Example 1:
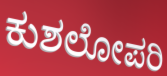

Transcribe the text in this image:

ಕುಶಲೋಪರಿ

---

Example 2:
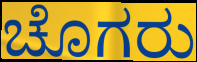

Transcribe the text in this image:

ಚೊಗರು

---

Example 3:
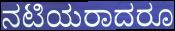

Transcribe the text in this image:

ನಟಿಯರಾದರೂ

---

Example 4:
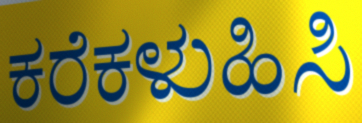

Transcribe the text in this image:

ಕರೆಕಳುಹಿಸಿ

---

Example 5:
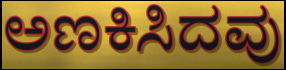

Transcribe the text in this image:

ಅಣಕಿಸಿದವು